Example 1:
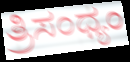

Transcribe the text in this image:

ತ್ರಿಸಂಧ್ಯಂ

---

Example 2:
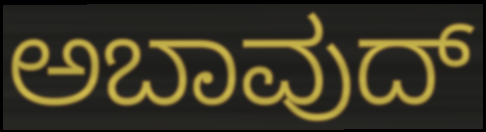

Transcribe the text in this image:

ಅಬಾವುದ್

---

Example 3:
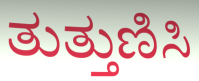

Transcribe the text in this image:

ತುತ್ತುಣಿಸಿ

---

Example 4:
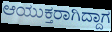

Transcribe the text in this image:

ಆಯುಕ್ತರಾಗಿದ್ದಾಗ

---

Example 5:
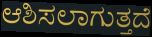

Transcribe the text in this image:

ಆಶಿಸಲಾಗುತ್ತದೆ